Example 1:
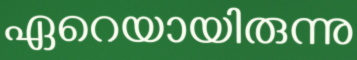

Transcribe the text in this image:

ഏറെയായിരുന്നു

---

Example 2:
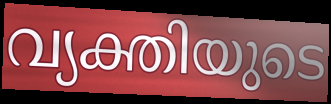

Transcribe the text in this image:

വ്യക്തിയുടെ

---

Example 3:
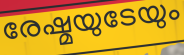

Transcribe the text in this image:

രേഷ്മയുടേയും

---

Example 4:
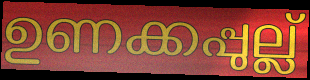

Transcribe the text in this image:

ഉണക്കപ്പുല്ല്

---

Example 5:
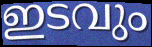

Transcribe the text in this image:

ഇടവും